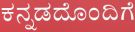
ಕನ್ನಡದೊಂದಿಗೆ